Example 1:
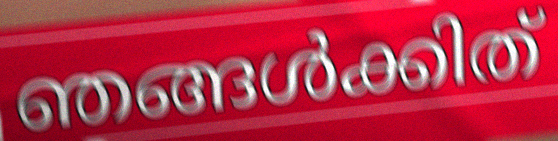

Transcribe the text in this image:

ഞങ്ങൾക്കിത്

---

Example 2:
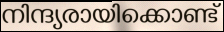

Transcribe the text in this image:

നിന്ദ്യരായിക്കൊണ്ട്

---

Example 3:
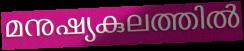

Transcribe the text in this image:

മനുഷ്യകുലത്തിൽ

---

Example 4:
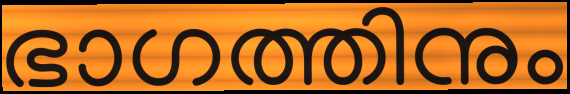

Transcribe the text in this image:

ഭാഗത്തിനും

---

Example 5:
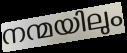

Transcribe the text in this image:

നന്മയിലും